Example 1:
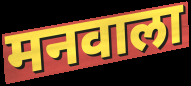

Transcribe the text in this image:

मनवाला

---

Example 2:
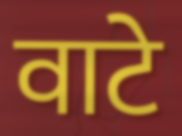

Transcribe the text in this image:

वाटे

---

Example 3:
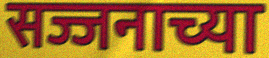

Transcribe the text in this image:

सज्जनाच्या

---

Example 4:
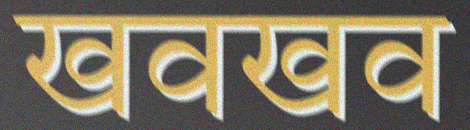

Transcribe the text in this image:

खवखव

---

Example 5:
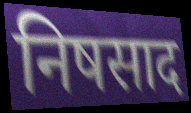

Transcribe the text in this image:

निषसाद